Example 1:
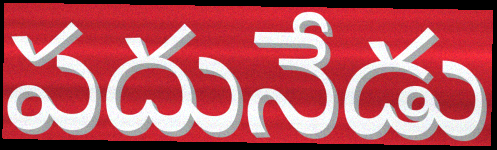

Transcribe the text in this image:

పదునేడు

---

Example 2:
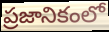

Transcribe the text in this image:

ప్రజానికంలో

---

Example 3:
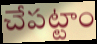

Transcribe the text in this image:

చేపట్టాం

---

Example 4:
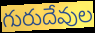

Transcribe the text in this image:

గురుదేవుల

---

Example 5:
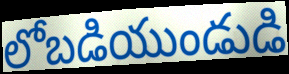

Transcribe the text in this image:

లోబడియుండుడి